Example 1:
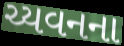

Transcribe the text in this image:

ચ્યવનના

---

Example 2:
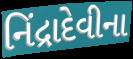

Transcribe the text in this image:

નિંદ્રાદેવીના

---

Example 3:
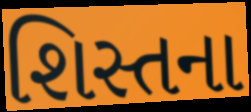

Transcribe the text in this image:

શિસ્તના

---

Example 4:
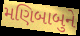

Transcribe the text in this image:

મણિબાબુને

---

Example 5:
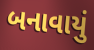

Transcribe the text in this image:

બનાવાયું